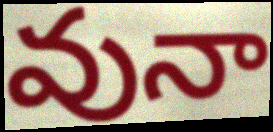
వునా